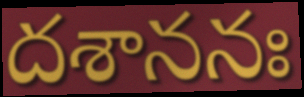
దశాననః